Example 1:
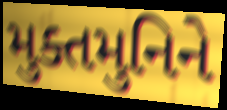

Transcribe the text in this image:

મુક્તમુનિને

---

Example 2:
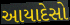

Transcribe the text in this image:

આયાદેસો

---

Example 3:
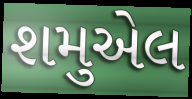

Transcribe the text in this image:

શમુએલ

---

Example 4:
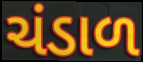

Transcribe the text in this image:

ચંડાળ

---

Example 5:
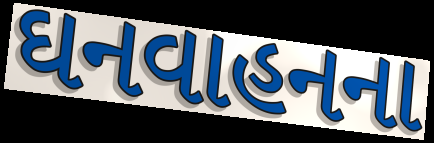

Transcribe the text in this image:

ઘનવાહનના